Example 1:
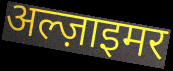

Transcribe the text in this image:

अल्ज़ाइमर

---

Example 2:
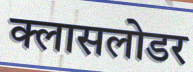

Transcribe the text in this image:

क्लासलोडर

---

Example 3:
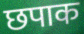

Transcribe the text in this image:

छपाक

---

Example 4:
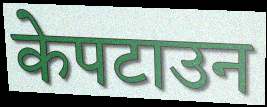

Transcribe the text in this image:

केपटाउन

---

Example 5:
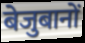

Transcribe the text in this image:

बेजुबानों